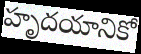
హృదయానికో